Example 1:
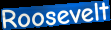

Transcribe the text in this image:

Roosevelt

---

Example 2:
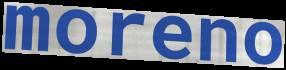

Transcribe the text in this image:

moreno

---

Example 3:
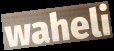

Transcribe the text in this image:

waheli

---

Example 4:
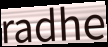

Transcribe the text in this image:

radhe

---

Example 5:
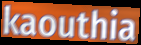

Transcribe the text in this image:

kaouthia